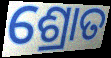
ଶ୍ରୋତ